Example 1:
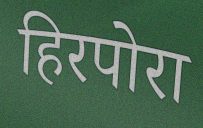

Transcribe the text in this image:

हिरपोरा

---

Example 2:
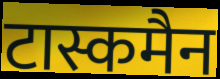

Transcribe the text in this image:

टास्कमैन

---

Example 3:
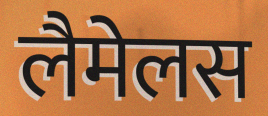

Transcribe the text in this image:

लैमेलस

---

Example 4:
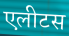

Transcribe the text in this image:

एलीटस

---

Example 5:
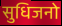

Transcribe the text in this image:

सुधिजनो